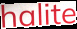
halite